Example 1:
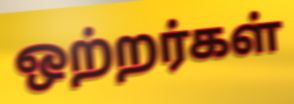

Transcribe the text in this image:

ஒற்றர்கள்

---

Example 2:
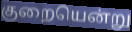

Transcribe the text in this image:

குறையென்று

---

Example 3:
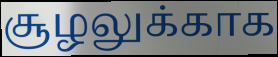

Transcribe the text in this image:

சூழலுக்காக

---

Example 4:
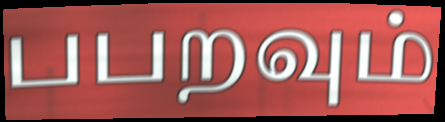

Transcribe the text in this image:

பபறவும்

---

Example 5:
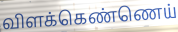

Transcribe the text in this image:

விளக்கெண்ணெய்